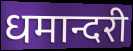
धमान्दरी